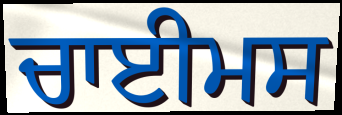
ਚਾਈਮਸ